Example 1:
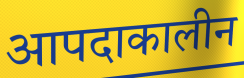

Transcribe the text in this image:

आपदाकालीन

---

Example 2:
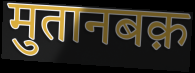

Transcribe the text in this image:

मुतानबक़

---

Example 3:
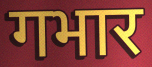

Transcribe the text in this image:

गभार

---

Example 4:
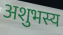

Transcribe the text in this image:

अशुभस्य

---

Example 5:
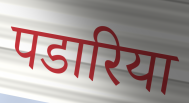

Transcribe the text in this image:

पडारिया